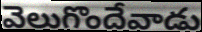
వెలుగొందేవాడు